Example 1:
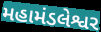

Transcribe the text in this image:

મહામંડલેશ્વર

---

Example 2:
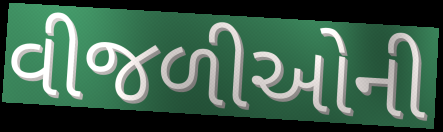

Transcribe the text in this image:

વીજળીઓની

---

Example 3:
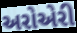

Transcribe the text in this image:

અરોએરી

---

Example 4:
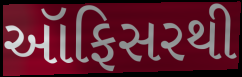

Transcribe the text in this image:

ઑફિસરથી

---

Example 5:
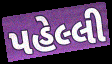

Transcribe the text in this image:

પહેલ્લી